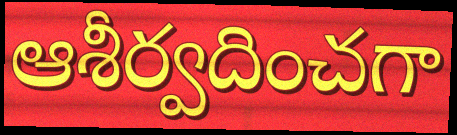
ఆశీర్వదించగా